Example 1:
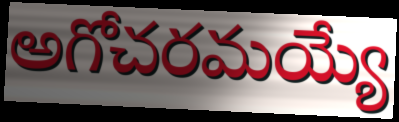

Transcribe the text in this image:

అగోచరమయ్యే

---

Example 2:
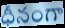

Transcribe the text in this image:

ధీనంగా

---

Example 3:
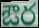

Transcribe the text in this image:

ఔర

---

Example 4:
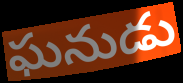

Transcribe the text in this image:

ఘనుడు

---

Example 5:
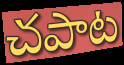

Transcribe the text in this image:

చపాట